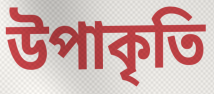
উপাকৃতি